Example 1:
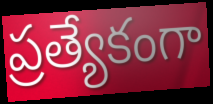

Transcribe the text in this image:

ప్రత్యేకంగా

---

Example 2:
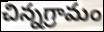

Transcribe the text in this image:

చిన్నగ్రామం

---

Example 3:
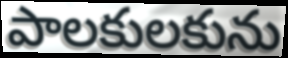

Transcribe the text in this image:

పాలకులకును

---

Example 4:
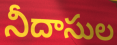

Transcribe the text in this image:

నీదాసుల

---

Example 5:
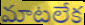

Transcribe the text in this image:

మాటలేక